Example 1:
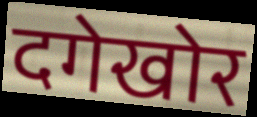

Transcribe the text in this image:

दगेखोर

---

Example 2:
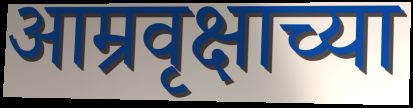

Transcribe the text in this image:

आम्रवृक्षाच्या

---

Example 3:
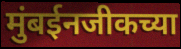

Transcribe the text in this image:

मुंबईनजीकच्या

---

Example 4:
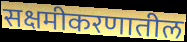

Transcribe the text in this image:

सक्षमीकरणातील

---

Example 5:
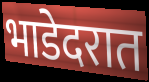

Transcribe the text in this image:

भाडेदरात